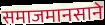
समाजमानसाने